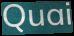
Quai